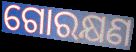
ଗୋରକ୍ଷଣ